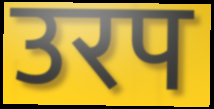
उरप